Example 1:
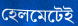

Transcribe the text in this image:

হেলমেটেই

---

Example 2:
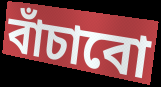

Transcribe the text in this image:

বাঁচাবো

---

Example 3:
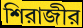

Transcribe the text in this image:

শিরাজীর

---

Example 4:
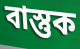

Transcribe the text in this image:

বাস্তুক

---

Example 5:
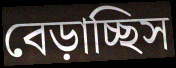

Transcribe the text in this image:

বেড়াচ্ছিস